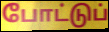
போட்டுப்